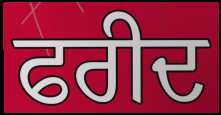
ਫਰੀਦ